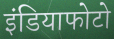
इंडियाफोटो